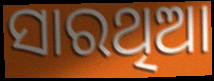
ସାରଥିଆ